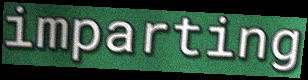
imparting